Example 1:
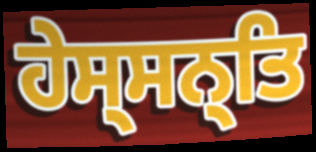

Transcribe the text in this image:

ਹੇਸ੍ਸਨ੍ਤਿ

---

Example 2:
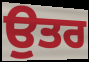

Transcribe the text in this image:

ਉੁਤਰ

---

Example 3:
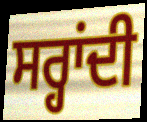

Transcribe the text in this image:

ਸਰ੍ਹਾਂਦੀ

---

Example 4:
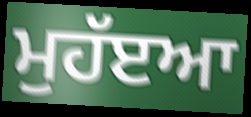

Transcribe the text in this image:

ਮੁਹੱੲਆ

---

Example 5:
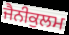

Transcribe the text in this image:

ਜੈਨੀਕੁਲਮ